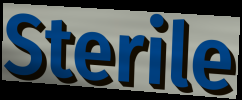
Sterile